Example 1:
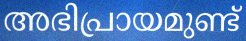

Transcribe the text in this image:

അഭിപ്രായമുണ്ട്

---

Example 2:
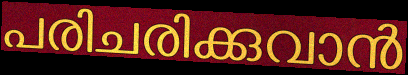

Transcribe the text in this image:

പരിചരിക്കുവാൻ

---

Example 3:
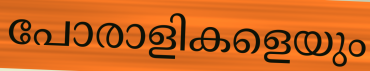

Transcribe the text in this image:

പോരാളികളെയും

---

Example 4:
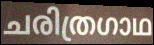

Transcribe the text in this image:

ചരിത്രഗാഥ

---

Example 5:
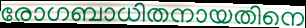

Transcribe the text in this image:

രോഗബാധിതനായതിനെ